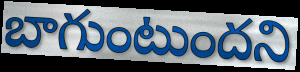
బాగుంటుందని